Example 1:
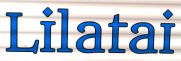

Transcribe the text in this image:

Lilatai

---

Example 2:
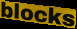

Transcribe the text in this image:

blocks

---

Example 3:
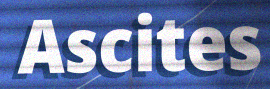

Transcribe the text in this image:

Ascites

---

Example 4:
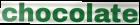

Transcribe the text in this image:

chocolate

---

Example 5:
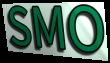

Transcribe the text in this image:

SMO